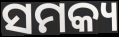
ସମକ୍ୟ